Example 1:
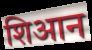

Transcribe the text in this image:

शिआन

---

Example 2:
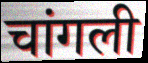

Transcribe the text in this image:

चांगली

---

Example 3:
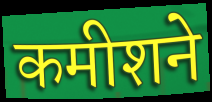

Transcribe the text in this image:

कमीशने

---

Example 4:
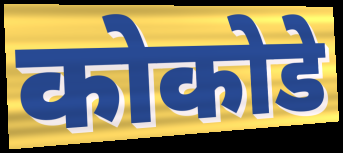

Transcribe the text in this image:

कोकोडे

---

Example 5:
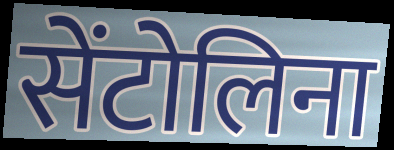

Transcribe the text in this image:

सेंटोलिना